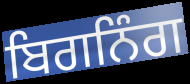
ਬਿਗਨਿੰਗ